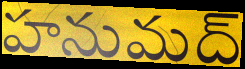
హనుమద్